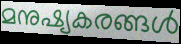
മനുഷ്യകരങ്ങൾ